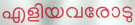
എളിയവരോടു